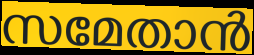
സമേതാൻ